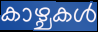
കാഴ്ചകൾ